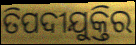
ତିପଦୀଯୁକ୍ତିର